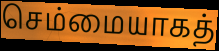
செம்மையாகத்